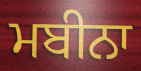
ਮਬੀਨਾ